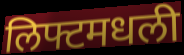
लिफ्टमधली